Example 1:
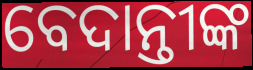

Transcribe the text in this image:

ବେଦାନ୍ତୀଙ୍କ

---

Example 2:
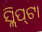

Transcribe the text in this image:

ସ୍ଲିପ୍‌ଟା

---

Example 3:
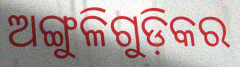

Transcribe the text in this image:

ଅଙ୍ଗୁଳିଗୁଡ଼ିକର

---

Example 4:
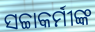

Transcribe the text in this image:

ସଚ୍ଚାକର୍ମୀଙ୍କ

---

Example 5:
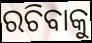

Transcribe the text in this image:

ରଚିବାକୁ